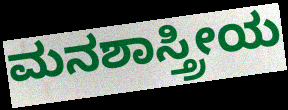
ಮನಶಾಸ್ತ್ರೀಯ